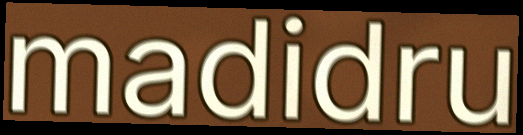
madidru